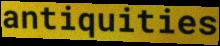
antiquities